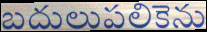
బదులుపలికెను